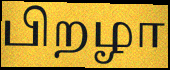
பிறழா